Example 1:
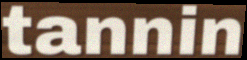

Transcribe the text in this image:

tannin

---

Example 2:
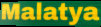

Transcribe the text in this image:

Malatya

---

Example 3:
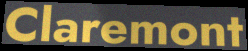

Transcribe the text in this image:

Claremont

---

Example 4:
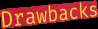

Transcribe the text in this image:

Drawbacks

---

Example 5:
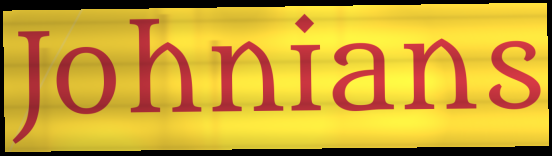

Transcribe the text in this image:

Johnians